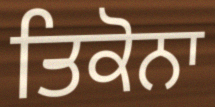
ਤਿਕੋਨਾ